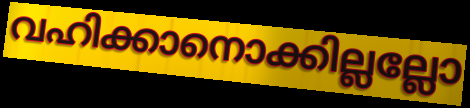
വഹിക്കാനൊക്കില്ലല്ലോ